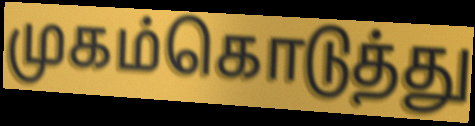
முகம்கொடுத்து